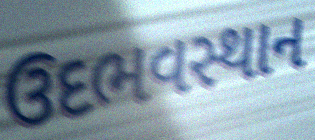
ઉદભવસ્થાન